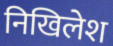
निखिलेश